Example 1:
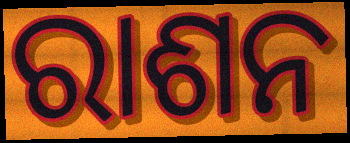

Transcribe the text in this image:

ରାଶନ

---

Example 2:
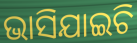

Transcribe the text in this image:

ଭାସିଯାଇଚି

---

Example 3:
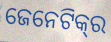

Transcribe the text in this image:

ଜେନେଟିକ୍‌ର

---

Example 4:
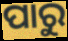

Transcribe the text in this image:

ପାରୁ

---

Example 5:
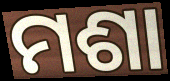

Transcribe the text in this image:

ମଶା